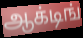
ஆக்டிங்